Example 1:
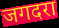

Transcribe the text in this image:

जगदरा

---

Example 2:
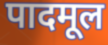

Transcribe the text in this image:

पादमूल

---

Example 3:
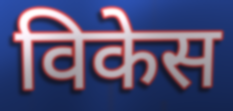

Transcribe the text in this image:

विकेस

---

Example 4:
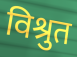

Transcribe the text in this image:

विश्रुत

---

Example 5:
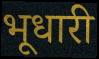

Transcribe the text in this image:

भूधारी